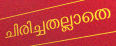
ചിരിച്ചതല്ലാതെ